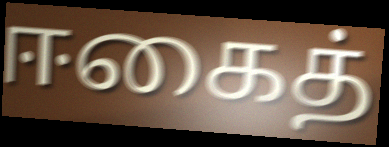
ஈகைத்